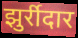
झुर्रीदार